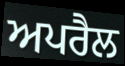
ਅਪਰੈਲ